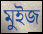
মুইজ